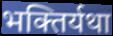
भक्तिर्यथा